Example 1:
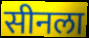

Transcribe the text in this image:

सीनला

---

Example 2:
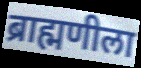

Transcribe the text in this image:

ब्राह्मणीला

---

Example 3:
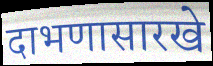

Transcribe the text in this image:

दाभणासारखे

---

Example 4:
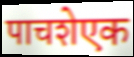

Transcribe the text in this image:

पाचशेएक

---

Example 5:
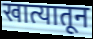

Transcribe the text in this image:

खात्यातून